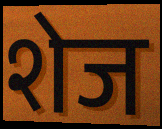
शेज